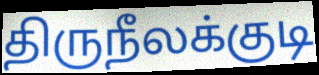
திருநீலக்குடி